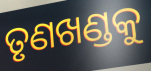
ତୃଣଖଣ୍ଡକୁ